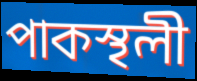
পাকস্থলী